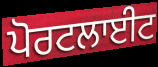
ਪੋਰਟਲਾਈਟ